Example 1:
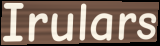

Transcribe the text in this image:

Irulars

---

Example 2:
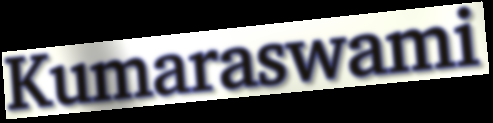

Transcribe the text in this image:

Kumaraswami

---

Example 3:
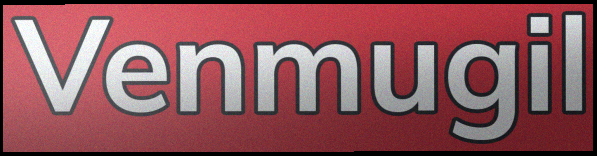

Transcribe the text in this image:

Venmugil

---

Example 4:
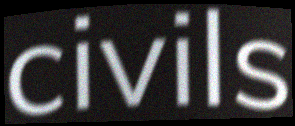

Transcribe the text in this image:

civils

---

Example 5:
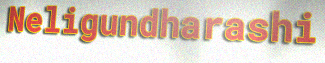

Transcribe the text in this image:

Neligundharashi